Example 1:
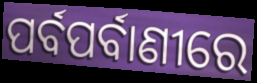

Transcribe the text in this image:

ପର୍ବପର୍ବାଣୀରେ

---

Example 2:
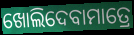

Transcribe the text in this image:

ଖୋଲିଦେବାମାତ୍ରେ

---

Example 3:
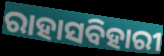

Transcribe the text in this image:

ରାହାସବିହାରୀ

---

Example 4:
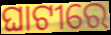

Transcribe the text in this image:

ଘାଟୀରେ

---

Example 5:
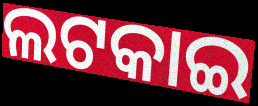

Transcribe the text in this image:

ଲଟକାଇ